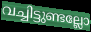
വച്ചിട്ടുണ്ടല്ലോ